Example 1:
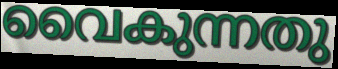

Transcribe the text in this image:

വൈകുന്നതു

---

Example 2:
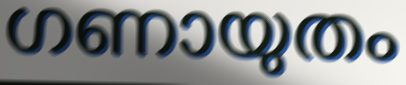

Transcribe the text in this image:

ഗണായുതം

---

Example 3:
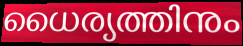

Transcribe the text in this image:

ധൈര്യത്തിനും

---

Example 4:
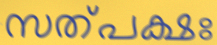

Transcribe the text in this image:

സത്പക്ഷഃ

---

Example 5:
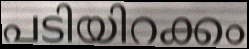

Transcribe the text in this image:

പടിയിറക്കം